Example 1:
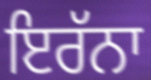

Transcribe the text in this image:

ਇਰੱਨਾ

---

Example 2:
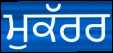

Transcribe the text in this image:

ਮੁਕੱਰਰ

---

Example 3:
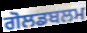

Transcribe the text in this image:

ਗੋਲਡਬਲਮ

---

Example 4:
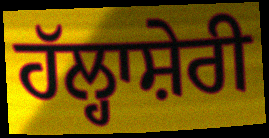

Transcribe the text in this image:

ਹੱਲ੍ਹਾਸ਼ੇਰੀ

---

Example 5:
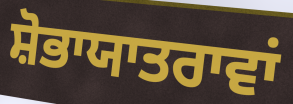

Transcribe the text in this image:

ਸ਼ੋਭਾਯਾਤਰਾਵਾਂ